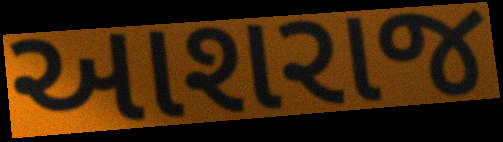
આશરાજ